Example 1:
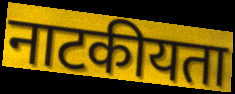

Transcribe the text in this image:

नाटकीयता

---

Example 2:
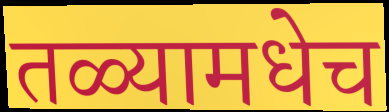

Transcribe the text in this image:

तळ्यामधेच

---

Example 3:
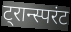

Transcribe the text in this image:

ट्रान्स्परंट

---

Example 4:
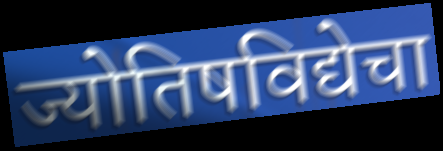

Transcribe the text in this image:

ज्योतिषविद्येचा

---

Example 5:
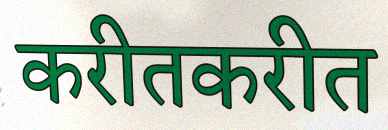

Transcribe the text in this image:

करीतकरीत